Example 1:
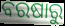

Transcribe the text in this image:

ବରଷାରୁ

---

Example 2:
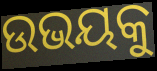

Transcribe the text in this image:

ଉଭୟକୁ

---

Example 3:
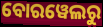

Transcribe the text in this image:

ବୋରୱେଲରୁ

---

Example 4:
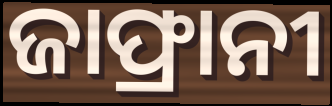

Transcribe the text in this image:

ଜାଫ୍ରାନୀ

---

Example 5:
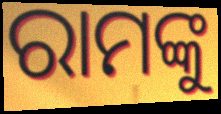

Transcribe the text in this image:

ରାମଙ୍କୁ